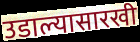
उडाल्यासारखी